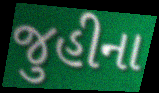
જુહીના